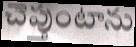
చెప్తుంటాను